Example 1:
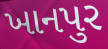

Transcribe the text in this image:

ખાનપુર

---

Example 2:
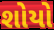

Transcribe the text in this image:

શોયો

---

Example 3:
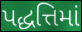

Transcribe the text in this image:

પદ્ધત્તિમાં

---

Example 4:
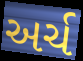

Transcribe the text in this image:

અર્ચ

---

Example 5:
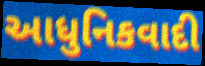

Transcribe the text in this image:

આધુનિકવાદી